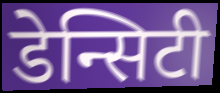
डेन्सिटी